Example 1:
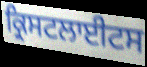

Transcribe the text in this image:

ਕ੍ਰਿਸਟਲਾਈਟਸ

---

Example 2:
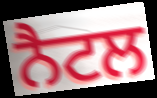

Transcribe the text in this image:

ਨੈਟਲ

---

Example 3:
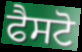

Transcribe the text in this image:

ਫੈਸਟੋ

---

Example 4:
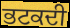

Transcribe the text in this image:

ਭਟਕਦੀ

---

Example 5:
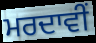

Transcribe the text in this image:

ਮਰਦਾਵੀਂ